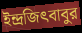
ইন্দ্রজিৎবাবুর